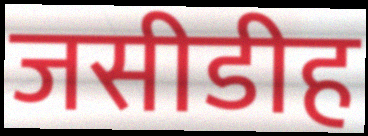
जसीडीह